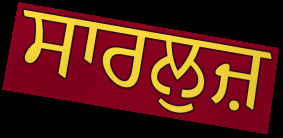
ਸਾਰਲੁਜ਼